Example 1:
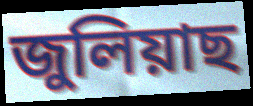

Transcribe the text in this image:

জুলিয়াছ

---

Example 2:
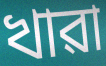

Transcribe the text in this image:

খাৱা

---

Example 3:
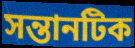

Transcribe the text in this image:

সন্তানটিক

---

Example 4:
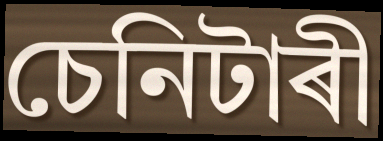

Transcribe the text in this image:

চেনিটাৰী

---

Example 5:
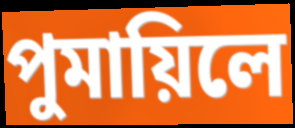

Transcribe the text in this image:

পুমায়িলে